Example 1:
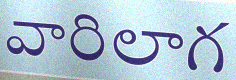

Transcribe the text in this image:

వారిలాగ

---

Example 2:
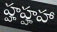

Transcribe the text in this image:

హ్హహ్హహా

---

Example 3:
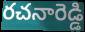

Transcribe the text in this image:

రచనారెడ్డి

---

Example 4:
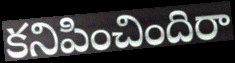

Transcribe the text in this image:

కనిపించిందిరా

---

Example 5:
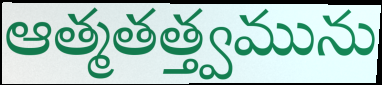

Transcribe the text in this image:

ఆత్మతత్త్వమును